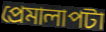
প্রেমালাপটা